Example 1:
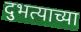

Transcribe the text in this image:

दुभत्याच्या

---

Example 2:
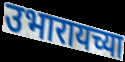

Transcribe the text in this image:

उभारायच्या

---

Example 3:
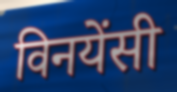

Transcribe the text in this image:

विनयेंसी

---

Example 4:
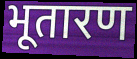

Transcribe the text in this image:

भूतारण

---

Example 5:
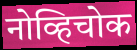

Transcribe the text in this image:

नोव्हिचोक